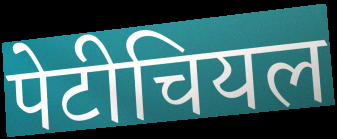
पेटीचियल